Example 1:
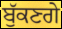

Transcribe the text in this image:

ਬੁੱਕਣਗੇ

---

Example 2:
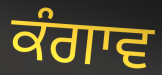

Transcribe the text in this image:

ਕੰਗਾਵ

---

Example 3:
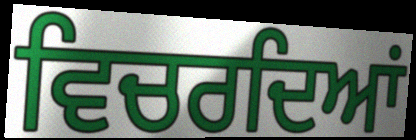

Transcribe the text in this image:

ਵਿਚਰਦਿਆਂ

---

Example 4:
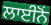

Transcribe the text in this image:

ਲਾਈਨੋਂ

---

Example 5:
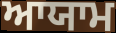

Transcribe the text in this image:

ਆਯਾਮ